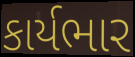
કાર્યભાર